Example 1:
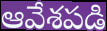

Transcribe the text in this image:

ఆవేశపడి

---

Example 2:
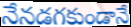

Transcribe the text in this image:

నేనడగకుండానే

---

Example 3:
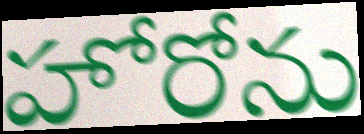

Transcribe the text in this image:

హోరోను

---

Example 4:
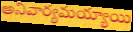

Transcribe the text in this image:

అనివార్యమయ్యాయి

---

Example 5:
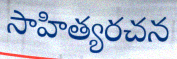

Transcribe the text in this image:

సాహిత్యరచన